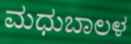
ಮಧುಬಾಲಳ